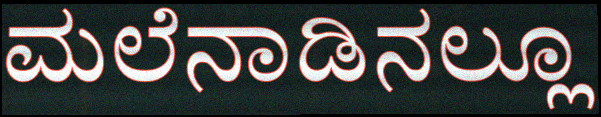
ಮಲೆನಾಡಿನಲ್ಲೂ